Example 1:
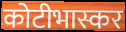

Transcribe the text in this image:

कोटीभास्कर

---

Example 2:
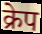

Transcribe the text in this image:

क्रेप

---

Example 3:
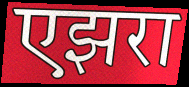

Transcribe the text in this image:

एझरा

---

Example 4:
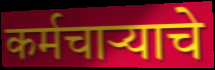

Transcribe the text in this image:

कर्मचाऱ्याचे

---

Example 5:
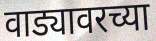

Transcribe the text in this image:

वाड्यावरच्या